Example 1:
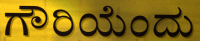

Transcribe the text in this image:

ಗೌರಿಯೆಂದು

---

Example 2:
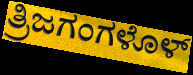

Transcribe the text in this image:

ತ್ರಿಜಗಂಗಳೊಳ್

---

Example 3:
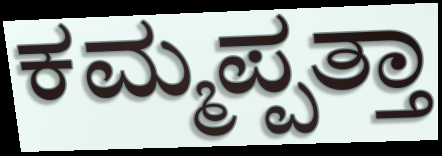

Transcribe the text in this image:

ಕಮ್ಮಪ್ಪತ್ತಾ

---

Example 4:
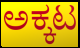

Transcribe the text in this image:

ಅಕ್ಕಟ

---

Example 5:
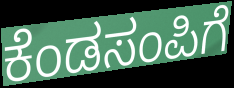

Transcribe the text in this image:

ಕೆಂಡಸಂಪಿಗೆ